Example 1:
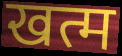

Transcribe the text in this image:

खत्म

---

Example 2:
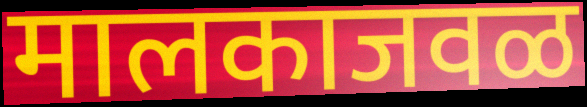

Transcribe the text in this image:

मालकाजवळ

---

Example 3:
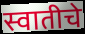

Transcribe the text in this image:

स्वातीचे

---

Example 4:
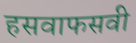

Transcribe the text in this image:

हसवाफसवी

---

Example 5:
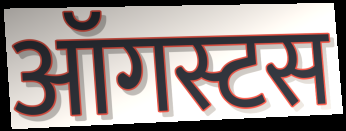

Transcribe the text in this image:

ऑगस्टस